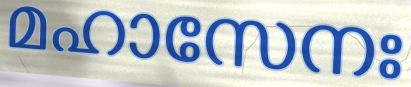
മഹാസേനഃ